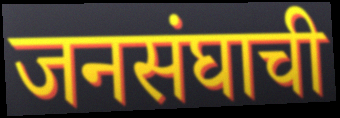
जनसंघाची